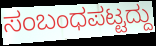
ಸಂಬಂಧಪಟ್ಟದ್ದು